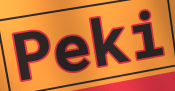
Peki